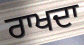
ਰਾਖਦਾ